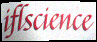
iflscience